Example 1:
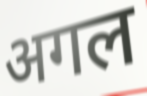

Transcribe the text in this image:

अगल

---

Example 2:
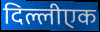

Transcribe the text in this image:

दिल्लीएक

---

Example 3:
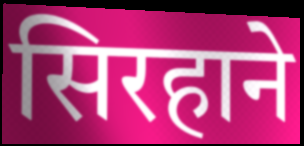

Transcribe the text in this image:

सिरहाने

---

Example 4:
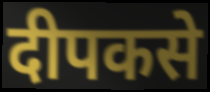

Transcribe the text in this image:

दीपकसे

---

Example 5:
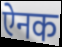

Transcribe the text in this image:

ऐनक